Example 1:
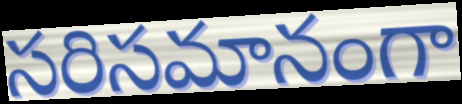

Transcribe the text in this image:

సరిసమానంగా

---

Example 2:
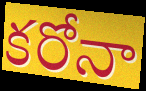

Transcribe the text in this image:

కరోనా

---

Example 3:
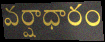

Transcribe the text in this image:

వర్షాధారం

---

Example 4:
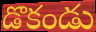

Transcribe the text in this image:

డొకండు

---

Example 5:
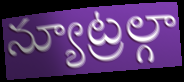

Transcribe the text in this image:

న్యూట్రల్గా